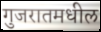
गुजरातमधील